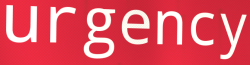
urgency